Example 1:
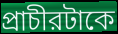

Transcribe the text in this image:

প্রাচীরটাকে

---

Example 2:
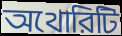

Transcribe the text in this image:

অথোরিটি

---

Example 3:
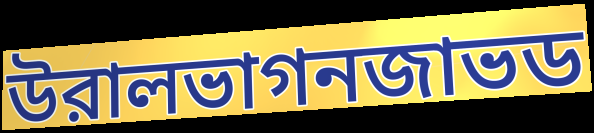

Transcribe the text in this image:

উরালভাগনজাভড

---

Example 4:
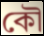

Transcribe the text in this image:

কৌ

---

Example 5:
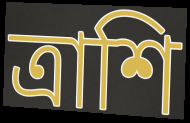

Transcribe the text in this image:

ত্রাশি